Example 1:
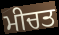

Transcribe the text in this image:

ਮੀਚਤ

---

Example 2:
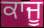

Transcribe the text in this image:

ਕਾਜੂ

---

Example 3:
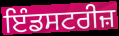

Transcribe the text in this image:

ਇੰਡਸਟਰੀਜ਼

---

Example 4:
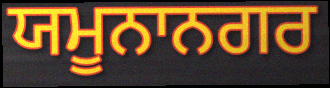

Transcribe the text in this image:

ਯਮੂਨਾਨਗਰ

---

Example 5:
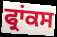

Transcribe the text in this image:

ਫ੍ਰਾਂਕਸ